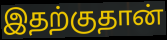
இதற்குதான்